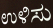
ಉಳಿಸು